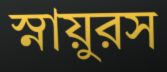
স্নায়ুরস